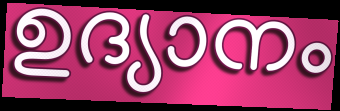
ഉദ്യാനം